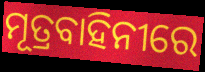
ମୂତ୍ରବାହିନୀରେ